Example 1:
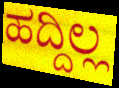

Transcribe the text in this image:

ಹದ್ದಿಲ್ಲ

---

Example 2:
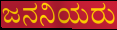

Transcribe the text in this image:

ಜನನಿಯರು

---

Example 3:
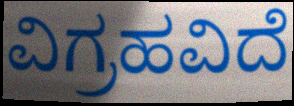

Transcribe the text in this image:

ವಿಗ್ರಹವಿದೆ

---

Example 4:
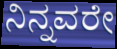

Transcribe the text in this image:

ನಿನ್ನವರೇ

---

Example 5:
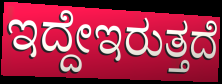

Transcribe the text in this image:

ಇದ್ದೇಇರುತ್ತದೆ